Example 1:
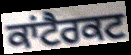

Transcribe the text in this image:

ਕਾਂਟੈਰਕਟ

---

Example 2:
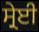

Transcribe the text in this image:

ਸ੍ਰੇਈ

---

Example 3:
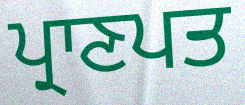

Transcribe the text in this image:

ਪ੍ਰਾਣਪਤ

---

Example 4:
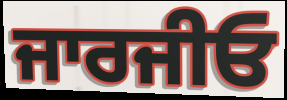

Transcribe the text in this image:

ਜਾਰਜੀਓ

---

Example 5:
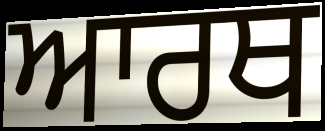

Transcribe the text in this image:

ਆਰਥ